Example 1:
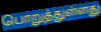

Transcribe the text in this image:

பொறுத்துள்ளது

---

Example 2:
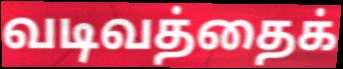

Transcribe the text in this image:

வடிவத்தைக்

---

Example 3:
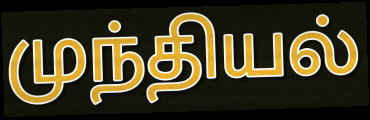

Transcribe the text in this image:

முந்தியல்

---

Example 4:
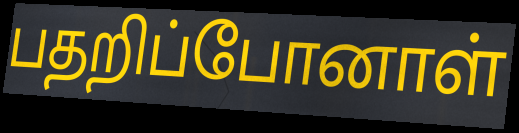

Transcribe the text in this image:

பதறிப்போனாள்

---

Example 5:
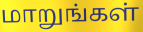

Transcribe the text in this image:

மாறுங்கள்